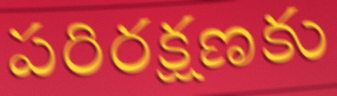
పరిరక్షణకు